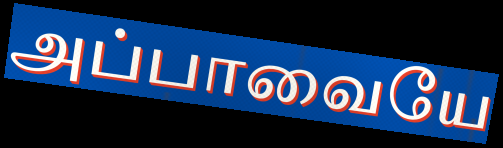
அப்பாவையே